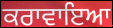
ਕਰਾਵਾਇਆ